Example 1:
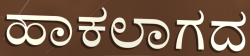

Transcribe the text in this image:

ಹಾಕಲಾಗದ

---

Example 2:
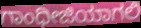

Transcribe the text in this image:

ಗಾಂಧೀಜಿಯಾಗಲಿ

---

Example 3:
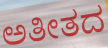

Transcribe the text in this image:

ಅತೀತದ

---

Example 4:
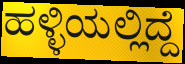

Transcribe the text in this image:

ಹಳ್ಳಿಯಲ್ಲಿದ್ದೆ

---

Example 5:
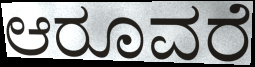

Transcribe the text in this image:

ಆರೂವರೆ